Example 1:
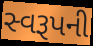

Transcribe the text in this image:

સ્વરૂપની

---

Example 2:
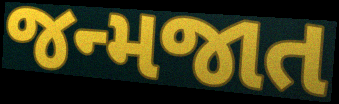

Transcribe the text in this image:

જન્મજાત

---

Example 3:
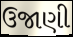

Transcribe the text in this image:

ઉજાણી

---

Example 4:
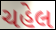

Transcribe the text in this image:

ચહેલ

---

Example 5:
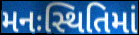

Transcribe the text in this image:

મનઃસ્થિતિમાં